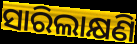
ସାରିଲାକ୍ଷଣି